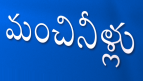
మంచినీళ్లు